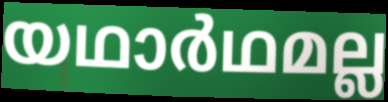
യഥാർഥമല്ല